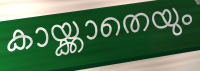
കായ്ക്കാതെയും